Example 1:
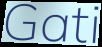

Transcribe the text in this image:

Gati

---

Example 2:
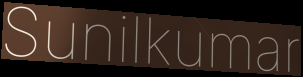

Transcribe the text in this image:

Sunilkumar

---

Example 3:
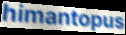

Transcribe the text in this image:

himantopus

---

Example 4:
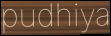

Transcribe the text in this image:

pudhiya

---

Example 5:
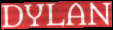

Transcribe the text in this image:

DYLAN